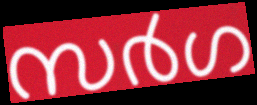
സർഗ